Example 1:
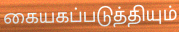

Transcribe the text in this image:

கையகப்படுத்தியும்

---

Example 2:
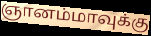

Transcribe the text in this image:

ஞானம்மாவுக்கு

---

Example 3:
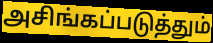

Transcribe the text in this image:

அசிங்கப்படுத்தும்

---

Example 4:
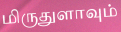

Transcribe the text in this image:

மிருதுளாவும்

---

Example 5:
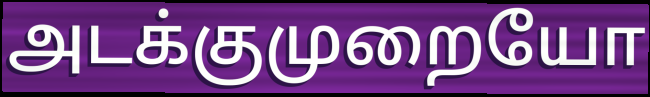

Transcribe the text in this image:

அடக்குமுறையோ